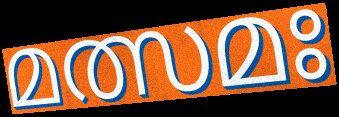
മത്സമഃ